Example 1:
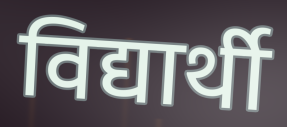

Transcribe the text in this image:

विद्यार्थी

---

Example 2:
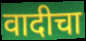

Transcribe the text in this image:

वादीचा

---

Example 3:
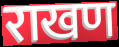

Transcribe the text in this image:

राखण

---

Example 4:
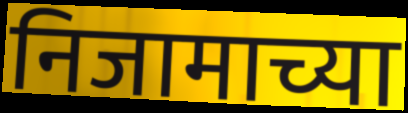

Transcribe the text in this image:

निजामाच्या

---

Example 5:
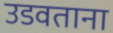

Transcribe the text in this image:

उडवताना